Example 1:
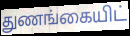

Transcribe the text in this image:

துணங்கையிட்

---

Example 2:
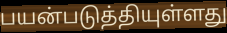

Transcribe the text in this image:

பயன்படுத்தியுள்ளது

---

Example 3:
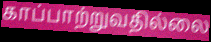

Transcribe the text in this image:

காப்பாற்றுவதில்லை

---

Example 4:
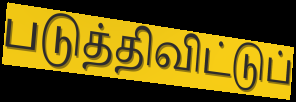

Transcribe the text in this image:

படுத்திவிட்டுப்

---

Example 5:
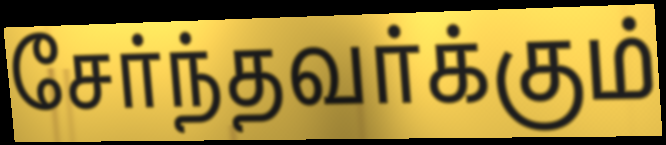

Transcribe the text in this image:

சேர்ந்தவர்க்கும்